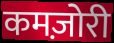
कमज़ोरी